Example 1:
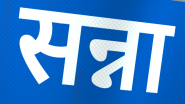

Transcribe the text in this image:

सन्ना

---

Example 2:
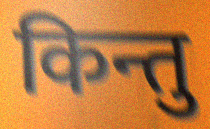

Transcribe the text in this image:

किन्‍तु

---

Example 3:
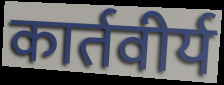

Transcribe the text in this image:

कार्तवीर्य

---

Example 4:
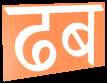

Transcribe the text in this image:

ढब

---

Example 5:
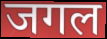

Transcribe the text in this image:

जगल